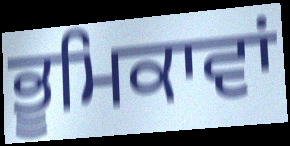
ਭੂਮਿਕਾਵਾਂ